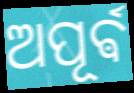
ଅପୂର୍ଵ